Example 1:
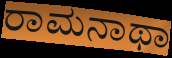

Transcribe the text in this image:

ರಾಮನಾಥಾ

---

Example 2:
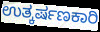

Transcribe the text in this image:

ಉತ್ಕರ್ಷಣಕಾರಿ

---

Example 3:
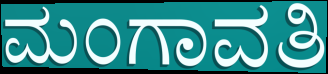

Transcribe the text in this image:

ಮಂಗಾವತಿ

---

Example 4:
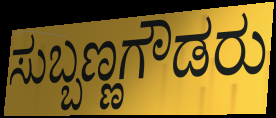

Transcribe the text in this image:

ಸುಬ್ಬಣ್ಣಗೌಡರು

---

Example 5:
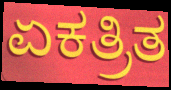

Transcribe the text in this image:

ಏಕತ್ರಿತ